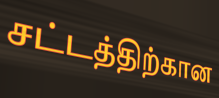
சட்டத்திற்கான